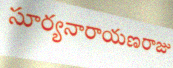
సూర్యనారాయణరాజు